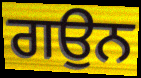
ਗਉਨ